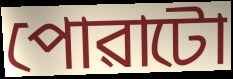
পোৱাটো